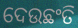
ଦେଉଛଂତି